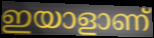
ഇയാളാണ്